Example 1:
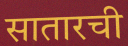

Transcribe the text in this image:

सातारची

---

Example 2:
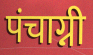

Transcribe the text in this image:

पंचाग्नी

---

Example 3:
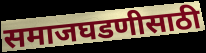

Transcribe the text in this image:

समाजघडणीसाठी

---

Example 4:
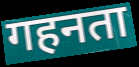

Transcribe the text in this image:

गहनता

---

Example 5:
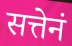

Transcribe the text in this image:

सत्तेनं